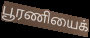
பூரணியைக்